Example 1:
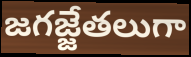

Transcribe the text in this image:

జగజ్జేతలుగా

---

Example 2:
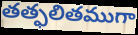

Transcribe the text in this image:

తత్ఫలితముగా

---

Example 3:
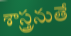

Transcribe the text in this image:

శాస్త్రనుతే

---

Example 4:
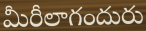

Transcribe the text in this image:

మీరీలాగందురు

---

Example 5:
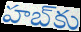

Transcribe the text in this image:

హబ్‌కు